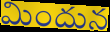
మిందున